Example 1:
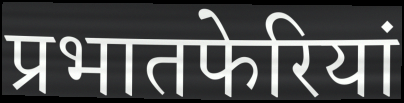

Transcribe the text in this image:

प्रभातफेरियां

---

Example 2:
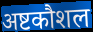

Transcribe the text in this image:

अष्टकौशल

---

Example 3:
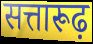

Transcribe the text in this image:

सत्तारूढ़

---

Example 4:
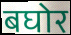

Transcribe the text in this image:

बघोर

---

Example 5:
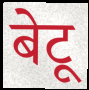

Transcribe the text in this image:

बेटू